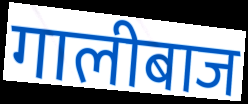
गालीबाज